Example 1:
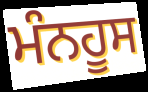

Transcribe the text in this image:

ਮੰਨਹੂਸ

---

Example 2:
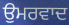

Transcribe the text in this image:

ਉਮਰਵਾਦ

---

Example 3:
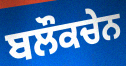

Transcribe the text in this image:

ਬਲੌਕਚੇਨ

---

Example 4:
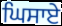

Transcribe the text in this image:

ਘਿਸਾਏ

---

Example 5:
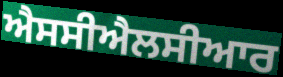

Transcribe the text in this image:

ਐਸਸੀਐਲਸੀਆਰ